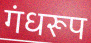
गंधरूप